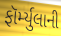
ફૉર્મ્યુલાની